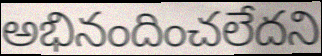
అభినందించలేదని